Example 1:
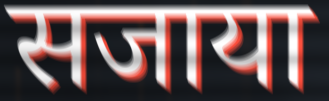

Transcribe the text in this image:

सजाया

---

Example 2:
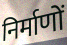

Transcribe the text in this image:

निर्माणों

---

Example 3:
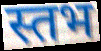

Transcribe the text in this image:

स्तभ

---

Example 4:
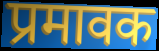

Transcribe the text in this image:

प्रमावक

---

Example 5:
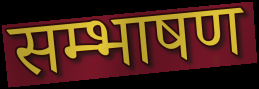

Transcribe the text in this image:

सम्भाषण